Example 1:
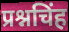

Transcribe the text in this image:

प्रश्नचिंह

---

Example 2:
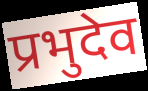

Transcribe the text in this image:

प्रभुदेव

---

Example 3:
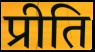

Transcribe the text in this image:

प्रीति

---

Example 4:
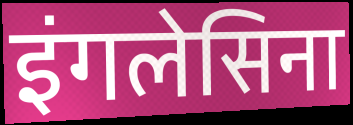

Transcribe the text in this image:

इंगलेसिना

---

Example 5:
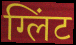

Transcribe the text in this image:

ग्लिंट